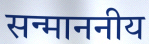
सन्माननीय